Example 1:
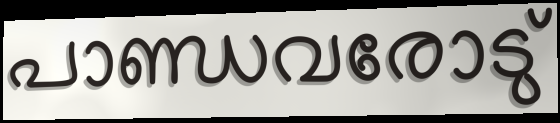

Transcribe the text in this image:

പാണ്ഡവരോടു്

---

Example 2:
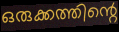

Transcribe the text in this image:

ഒരുക്കത്തിന്റെ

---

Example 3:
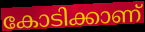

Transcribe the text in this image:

കോടിക്കാണ്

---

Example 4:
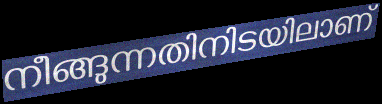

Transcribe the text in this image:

നീങ്ങുന്നതിനിടയിലാണ്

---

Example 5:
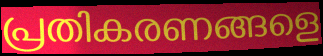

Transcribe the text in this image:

പ്രതികരണങ്ങളെ